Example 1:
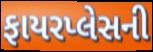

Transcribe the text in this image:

ફાયરપ્લેસની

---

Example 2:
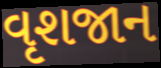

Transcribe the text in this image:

વૃશજાન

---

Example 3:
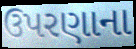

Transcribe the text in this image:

ઉપરણાના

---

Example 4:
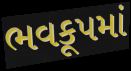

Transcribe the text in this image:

ભવકૂપમાં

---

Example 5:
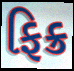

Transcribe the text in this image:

ફિક્ર